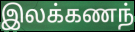
இலக்கணந்